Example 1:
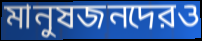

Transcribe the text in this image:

মানুষজনদেরও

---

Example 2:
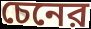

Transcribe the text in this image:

চেনের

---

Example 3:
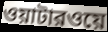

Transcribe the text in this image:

ওয়াটারওয়ে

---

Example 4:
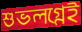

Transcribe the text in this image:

শুভলগ্নেই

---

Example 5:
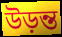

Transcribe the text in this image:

উড়ন্ত